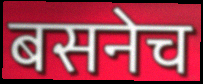
बसनेच